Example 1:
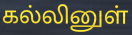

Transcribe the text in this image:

கல்லினுள்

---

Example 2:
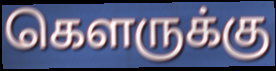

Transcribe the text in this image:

கௌருக்கு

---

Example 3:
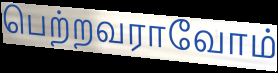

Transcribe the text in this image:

பெற்றவராவோம்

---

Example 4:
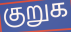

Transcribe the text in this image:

குறுக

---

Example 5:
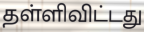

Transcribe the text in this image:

தள்ளிவிட்டது